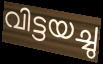
വിട്ടയച്ചു